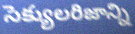
సెక్యులరిజాన్ని